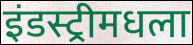
इंडस्ट्रीमधला